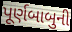
પૂર્ણબાબુની